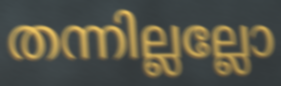
തന്നില്ലല്ലോ